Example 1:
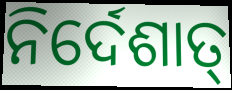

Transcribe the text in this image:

ନିର୍ଦେଶାତ୍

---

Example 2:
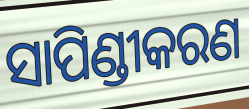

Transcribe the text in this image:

ସାପିଣ୍ଡୀକରଣ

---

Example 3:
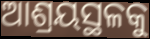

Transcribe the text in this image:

ଆଶ୍ରୟସ୍ଥଳକୁ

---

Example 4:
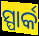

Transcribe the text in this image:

ସ୍ପାର୍କ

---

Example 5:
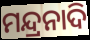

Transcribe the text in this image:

ମନ୍ଦ୍ରନାଦି